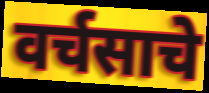
वर्चसाचे